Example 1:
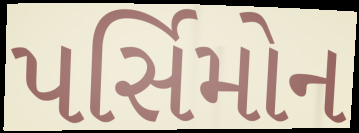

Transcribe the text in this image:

પર્સિમોન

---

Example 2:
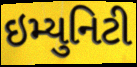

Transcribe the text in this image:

ઇમ્યુનિટી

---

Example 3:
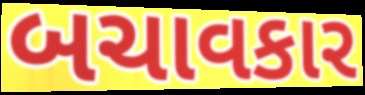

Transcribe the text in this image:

બચાવકાર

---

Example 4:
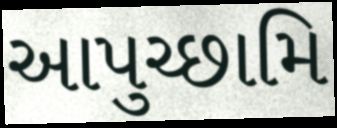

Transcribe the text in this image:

આપુચ્છામિ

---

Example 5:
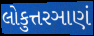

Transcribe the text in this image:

લોકુત્તરઞાણં